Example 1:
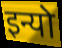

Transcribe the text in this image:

इन्यो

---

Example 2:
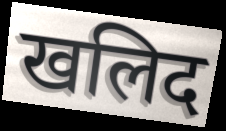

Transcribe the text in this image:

खलिद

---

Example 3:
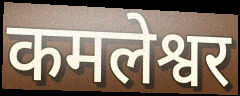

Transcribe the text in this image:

कमलेश्वर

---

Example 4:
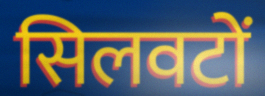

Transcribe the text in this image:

सिलवटों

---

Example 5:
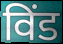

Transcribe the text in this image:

विंड